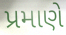
પ્રમાણે